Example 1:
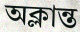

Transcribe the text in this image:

অক্লান্ত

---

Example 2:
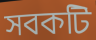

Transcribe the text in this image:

সবকটি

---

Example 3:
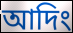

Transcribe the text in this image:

আদিং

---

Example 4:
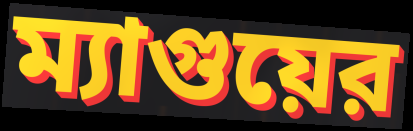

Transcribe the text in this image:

ম্যাগুয়ের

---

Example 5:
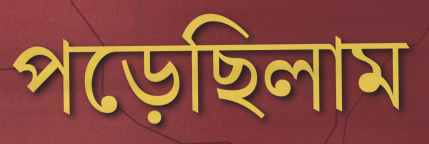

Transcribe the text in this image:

পড়েছিলাম